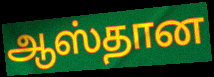
ஆஸ்தான